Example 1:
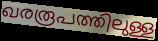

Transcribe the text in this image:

ഖരരൂപത്തിലുള്ള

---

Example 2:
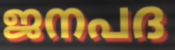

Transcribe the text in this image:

ജനപദ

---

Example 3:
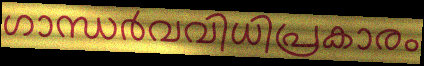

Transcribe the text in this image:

ഗാന്ധർവവിധിപ്രകാരം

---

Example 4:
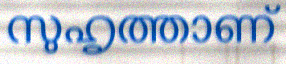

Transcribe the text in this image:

സുഹൃത്താണ്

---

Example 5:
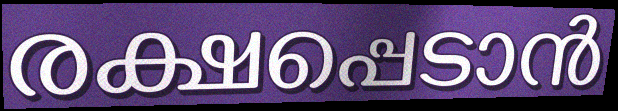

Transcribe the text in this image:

രക്ഷപ്പെടാൻ